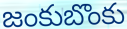
జంకుబొంకు